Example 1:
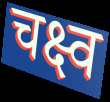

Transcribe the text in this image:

चक्ष्व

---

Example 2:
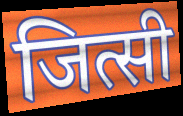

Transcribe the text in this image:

जित्सी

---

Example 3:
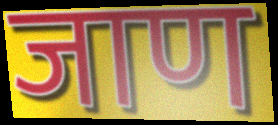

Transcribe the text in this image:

जाण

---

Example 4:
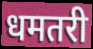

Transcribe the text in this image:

धमतरी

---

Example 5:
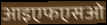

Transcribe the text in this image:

आइएफएसओ